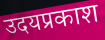
उदयप्रकाश